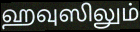
ஹவுஸிலும்